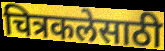
चित्रकलेसाठी